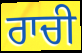
ਰਾਚੀ